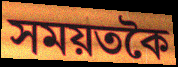
সময়তকৈ